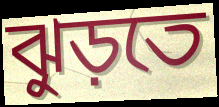
ঝুড়তে